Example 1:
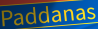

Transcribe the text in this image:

Paddanas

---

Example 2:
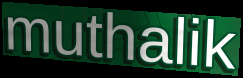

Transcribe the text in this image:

muthalik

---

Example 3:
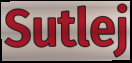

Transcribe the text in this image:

Sutlej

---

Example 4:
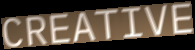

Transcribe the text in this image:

CREATIVE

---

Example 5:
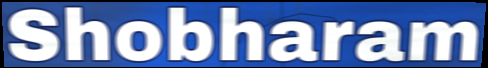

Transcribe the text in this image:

Shobharam